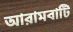
আরামবাটি